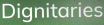
Dignitaries